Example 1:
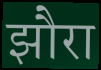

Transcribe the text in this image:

झौरा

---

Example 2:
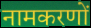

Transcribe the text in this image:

नामकरणों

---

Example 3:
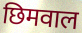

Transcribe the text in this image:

छिमवाल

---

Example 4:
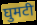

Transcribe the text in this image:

घुमटी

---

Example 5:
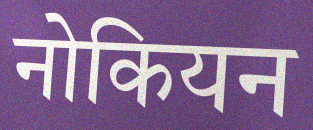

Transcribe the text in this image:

नोकियन